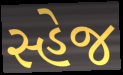
સ્હેજ